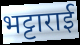
भट्टाराई